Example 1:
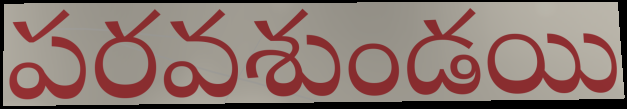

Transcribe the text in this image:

పరవశుండయి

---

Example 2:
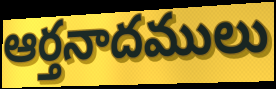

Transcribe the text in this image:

ఆర్తనాదములు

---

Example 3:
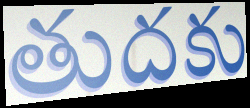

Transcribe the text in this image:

తుదకు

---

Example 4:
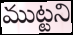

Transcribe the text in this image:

ముట్టని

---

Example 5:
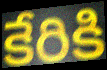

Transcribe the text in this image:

కేరికి